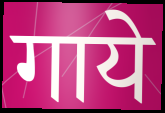
गाये